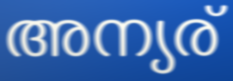
അന്യര്